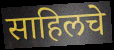
साहिलचे